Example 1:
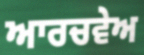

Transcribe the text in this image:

ਆਰਚਵੇਅ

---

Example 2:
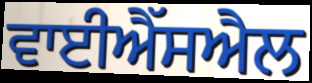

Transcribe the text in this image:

ਵਾਈਐੱਸਐਲ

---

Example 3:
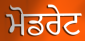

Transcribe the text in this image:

ਮੋਡਰੇਟ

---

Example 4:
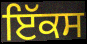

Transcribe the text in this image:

ਇੱਕਸ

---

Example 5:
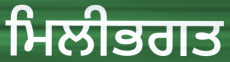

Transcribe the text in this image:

ਮਿਲੀਭਗਤ